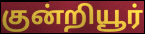
குன்றியூர்